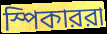
স্পিকাররা